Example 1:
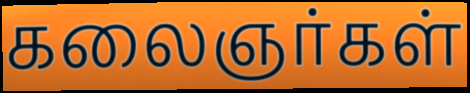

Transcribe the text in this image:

கலைஞர்கள்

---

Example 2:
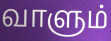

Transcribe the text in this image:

வாளும்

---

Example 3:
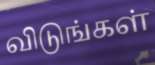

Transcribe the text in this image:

விடுங்கள்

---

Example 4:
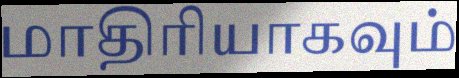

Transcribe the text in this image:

மாதிரியாகவும்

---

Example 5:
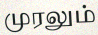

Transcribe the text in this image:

முரலும்